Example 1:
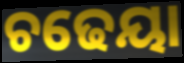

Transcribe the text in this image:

ଚଢେୟା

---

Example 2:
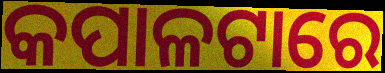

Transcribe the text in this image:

କପାଳଟାରେ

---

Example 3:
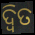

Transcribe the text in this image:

ଦ୍ବିତ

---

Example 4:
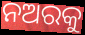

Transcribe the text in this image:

ନଅରକୁ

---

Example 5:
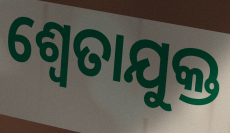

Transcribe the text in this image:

ଶ୍ଵେତାଯୁକ୍ତ